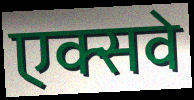
एक्सवे